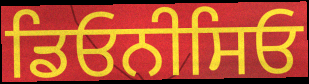
ਡਿਓਨੀਸਿਓ